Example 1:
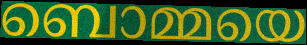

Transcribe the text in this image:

ബൊമ്മയെ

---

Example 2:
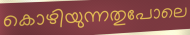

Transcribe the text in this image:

കൊഴിയുന്നതുപോലെ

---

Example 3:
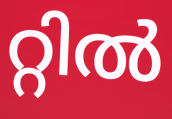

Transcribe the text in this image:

റ്റിൽ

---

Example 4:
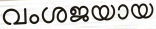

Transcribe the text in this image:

വംശജയായ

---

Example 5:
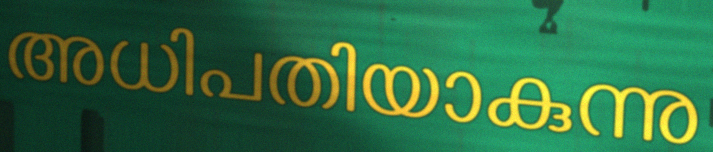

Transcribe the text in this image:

അധിപതിയാകുന്നു